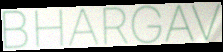
BHARGAV